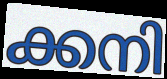
ക്കനി